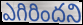
ఎగిరిందని